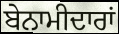
ਬੇਨਾਮੀਦਾਰਾਂ